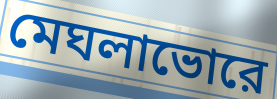
মেঘলাভোরে